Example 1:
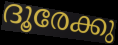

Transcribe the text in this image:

ദൂരേക്കു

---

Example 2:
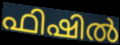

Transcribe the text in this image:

ഫിഷിൽ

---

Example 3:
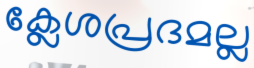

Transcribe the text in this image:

ക്ലേശപ്രദമല്ല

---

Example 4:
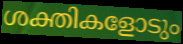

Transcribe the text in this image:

ശക്തികളോടും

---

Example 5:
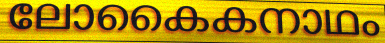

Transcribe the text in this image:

ലോകൈകനാഥം